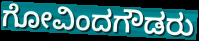
ಗೋವಿಂದಗೌಡರು